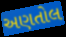
અણતોલ